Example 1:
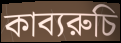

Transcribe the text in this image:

কাব্যরুচি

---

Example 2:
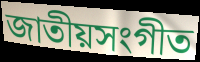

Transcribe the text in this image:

জাতীয়সংগীত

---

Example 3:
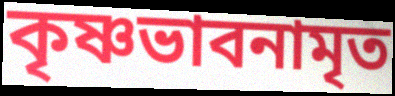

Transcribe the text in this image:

কৃষ্ণভাবনামৃত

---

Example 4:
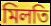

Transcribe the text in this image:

মিলতি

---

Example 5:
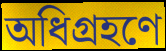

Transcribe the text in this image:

অধিগ্রহণে